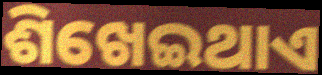
ଶିଖେଇଥାଏ